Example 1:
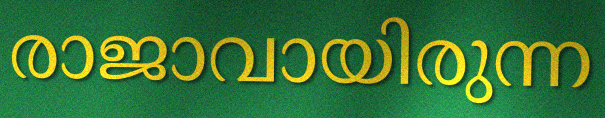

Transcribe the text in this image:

രാജാവായിരുന്ന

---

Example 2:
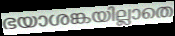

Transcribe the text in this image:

ഭയാശങ്കയില്ലാതെ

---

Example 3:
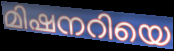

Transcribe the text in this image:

മിഷനറിയെ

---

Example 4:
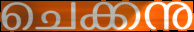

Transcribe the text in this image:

ചെക്കനു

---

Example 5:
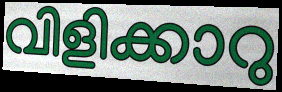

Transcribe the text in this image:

വിളിക്കാറു